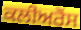
ਕਲੀਅਰੈਂਸ